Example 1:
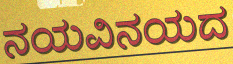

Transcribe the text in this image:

ನಯವಿನಯದ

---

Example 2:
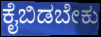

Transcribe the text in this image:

ಕೈಬಿಡಬೇಕು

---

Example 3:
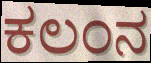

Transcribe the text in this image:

ಕಲಂನ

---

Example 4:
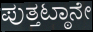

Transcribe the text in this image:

ಪುತ್ತಟ್ಠಾನೇ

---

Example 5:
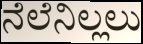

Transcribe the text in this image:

ನೆಲೆನಿಲ್ಲಲು